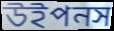
উইপনস